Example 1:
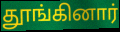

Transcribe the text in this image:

தூங்கினார்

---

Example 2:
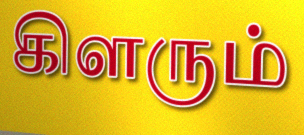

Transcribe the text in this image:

கிளரும்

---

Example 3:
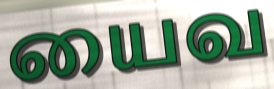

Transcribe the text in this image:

யைவ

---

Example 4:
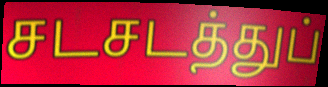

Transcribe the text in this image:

சடசடத்துப்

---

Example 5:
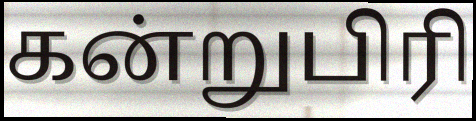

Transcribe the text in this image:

கன்றுபிரி